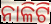
ନାଳିଟି